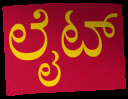
ಲೈಟ್